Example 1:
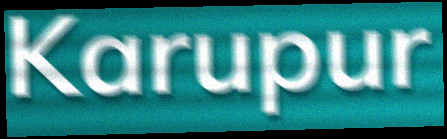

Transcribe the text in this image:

Karupur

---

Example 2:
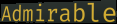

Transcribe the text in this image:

Admirable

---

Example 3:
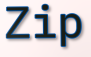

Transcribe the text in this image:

Zip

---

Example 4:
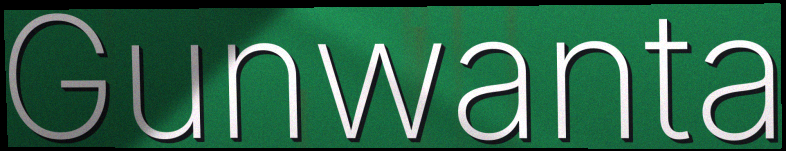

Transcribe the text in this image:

Gunwanta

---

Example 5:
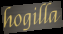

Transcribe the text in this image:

hogilla